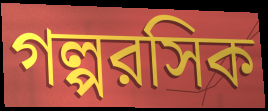
গল্পরসিক